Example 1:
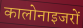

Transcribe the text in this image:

कालोनाइजरों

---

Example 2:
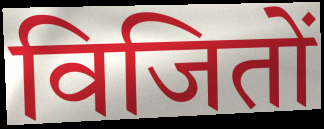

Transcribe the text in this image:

विजितों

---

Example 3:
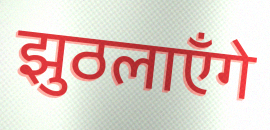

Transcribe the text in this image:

झुठलाएँगे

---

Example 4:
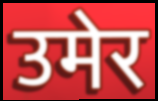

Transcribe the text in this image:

उमेर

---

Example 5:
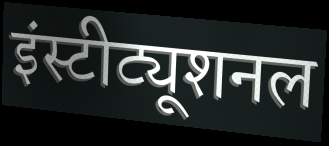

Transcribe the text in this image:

इंस्टीट्यूशनल